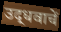
उद्धवाचें